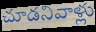
చూడనివాళ్లు